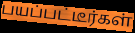
பயப்பட்டீர்கள்